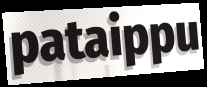
pataippu